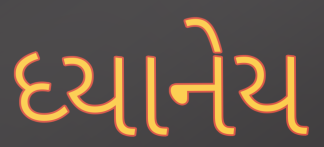
ધ્યાનેય